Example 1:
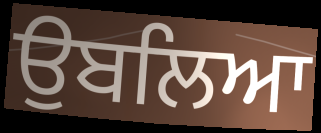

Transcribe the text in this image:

ਉਬਲਿਆ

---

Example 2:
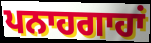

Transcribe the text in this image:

ਪਨਾਹਗਾਹਾਂ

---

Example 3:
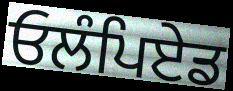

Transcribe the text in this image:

ਓਲੰਪਿਏਡ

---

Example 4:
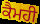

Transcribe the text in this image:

ਕੈਮਹੀ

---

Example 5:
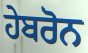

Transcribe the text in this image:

ਹੇਬਰੋਨ